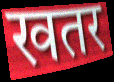
खतर